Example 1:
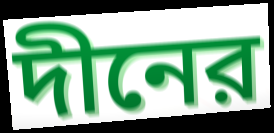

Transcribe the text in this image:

দীনের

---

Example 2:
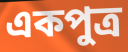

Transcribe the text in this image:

একপুত্র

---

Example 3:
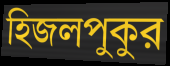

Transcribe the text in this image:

হিজলপুকুর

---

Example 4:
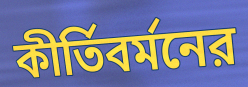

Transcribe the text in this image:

কীর্তিবর্মনের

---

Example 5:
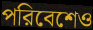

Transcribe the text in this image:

পরিবেশেও